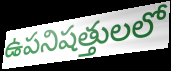
ఉపనిషత్తులలో